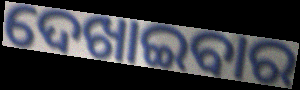
ଦେଖାଇବାର